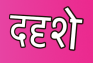
ददृशे